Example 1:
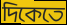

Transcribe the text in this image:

দিকেতে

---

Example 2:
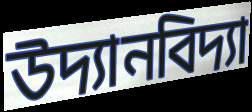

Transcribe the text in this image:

উদ্যানবিদ্যা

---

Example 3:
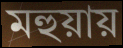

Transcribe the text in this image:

মহুয়ায়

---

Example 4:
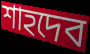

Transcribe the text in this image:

শাহদেব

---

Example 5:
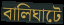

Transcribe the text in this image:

বালিঘাটে